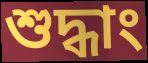
শুদ্ধাং